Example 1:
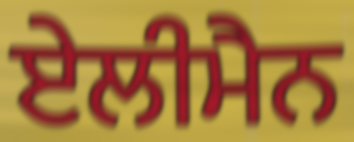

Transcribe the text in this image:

ਏਲੀਮੈਨ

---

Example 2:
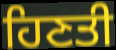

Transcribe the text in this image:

ਹਿਣਤੀ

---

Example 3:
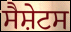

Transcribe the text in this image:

ਸੈਸ਼ੇਟਸ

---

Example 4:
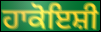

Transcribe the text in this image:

ਹਾਕੋਇਸ਼ੀ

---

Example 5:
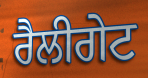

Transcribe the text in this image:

ਰੈਲੀਗੇਟ